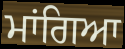
ਮਾਂਗਿਆ